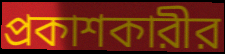
প্রকাশকারীর